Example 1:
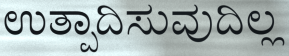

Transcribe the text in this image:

ಉತ್ಪಾದಿಸುವುದಿಲ್ಲ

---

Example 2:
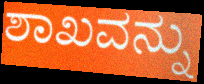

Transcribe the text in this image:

ಶಾಖವನ್ನು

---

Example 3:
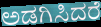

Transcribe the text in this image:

ಅಡಗಿಸಿದರೆ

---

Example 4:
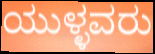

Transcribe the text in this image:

ಯುಳ್ಳವರು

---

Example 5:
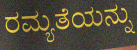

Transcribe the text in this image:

ರಮ್ಯತೆಯನ್ನು